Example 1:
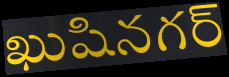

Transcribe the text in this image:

ఖుషినగర్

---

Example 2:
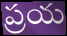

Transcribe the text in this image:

ప్రయ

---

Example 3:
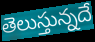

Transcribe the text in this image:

తెలుస్తున్నదే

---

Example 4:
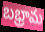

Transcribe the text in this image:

బభ్రామ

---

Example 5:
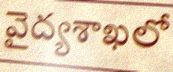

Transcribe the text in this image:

వైద్యశాఖలో